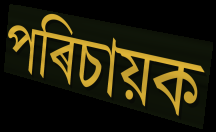
পৰিচায়ক